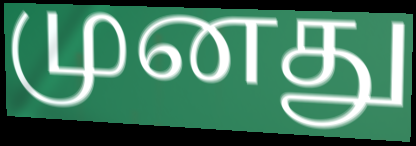
முனது